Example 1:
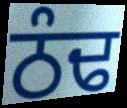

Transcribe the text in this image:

ਠੰਢ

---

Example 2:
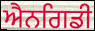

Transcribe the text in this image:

ਐਨਗਿਡੀ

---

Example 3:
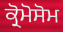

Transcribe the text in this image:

ਕ੍ਰੋਮੋਸੋਮ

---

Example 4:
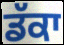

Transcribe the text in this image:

ਡੱਕਾ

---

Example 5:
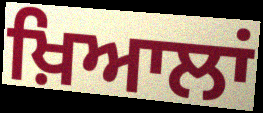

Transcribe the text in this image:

ਖ਼ਿਆਲਾਂ